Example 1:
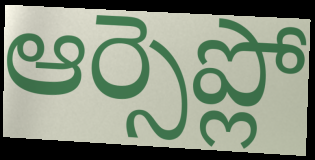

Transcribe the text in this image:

ఆర్సెప్లో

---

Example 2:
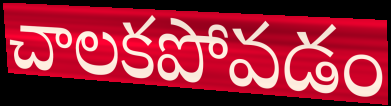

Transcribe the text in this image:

చాలకపోవడం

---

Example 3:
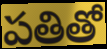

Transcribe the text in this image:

పతితో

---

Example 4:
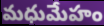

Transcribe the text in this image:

మధుమేహం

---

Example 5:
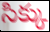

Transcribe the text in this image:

సిక్కు